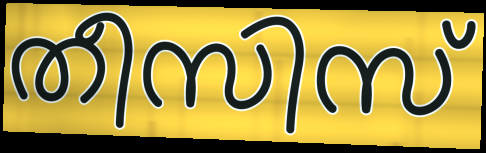
തീസിസ്